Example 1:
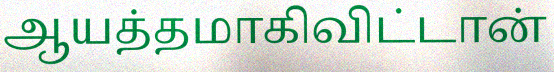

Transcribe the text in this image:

ஆயத்தமாகிவிட்டான்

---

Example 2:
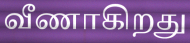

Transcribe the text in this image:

வீணாகிறது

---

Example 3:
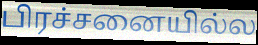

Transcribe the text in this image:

பிரச்சனையில்ல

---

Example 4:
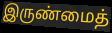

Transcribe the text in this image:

இருண்மைத்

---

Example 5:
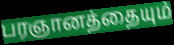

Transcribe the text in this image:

பரஞானத்தையும்